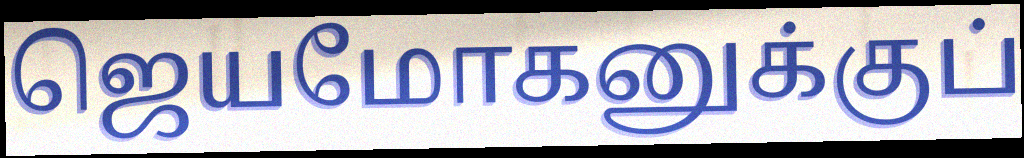
ஜெயமோகனுக்குப்